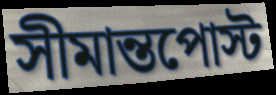
সীমান্তপোস্ট